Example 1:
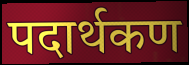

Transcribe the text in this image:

पदार्थकण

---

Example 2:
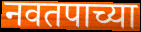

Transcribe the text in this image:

नवतपाच्या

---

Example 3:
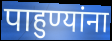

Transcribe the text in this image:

पाहुण्यांना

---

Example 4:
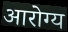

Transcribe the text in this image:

आरोग्य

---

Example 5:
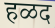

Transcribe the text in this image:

हळद